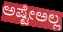
ಅಷ್ಟೇಅಲ್ಲ